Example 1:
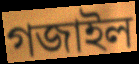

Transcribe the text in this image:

গজাইল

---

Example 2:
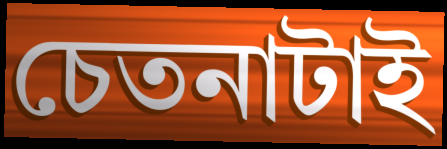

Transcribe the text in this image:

চেতনাটাই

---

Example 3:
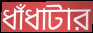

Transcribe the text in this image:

ধাঁধাটার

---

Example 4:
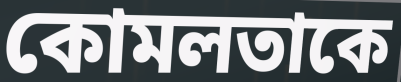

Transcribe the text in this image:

কোমলতাকে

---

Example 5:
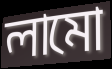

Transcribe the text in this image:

লামো